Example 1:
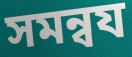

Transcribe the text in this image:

সমন্বয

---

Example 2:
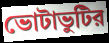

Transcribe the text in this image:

ভোটাভুটির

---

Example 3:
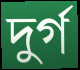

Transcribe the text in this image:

দুর্গ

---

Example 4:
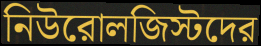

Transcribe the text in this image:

নিউরোলজিস্টদের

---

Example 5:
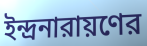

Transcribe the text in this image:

ইন্দ্রনারায়ণের